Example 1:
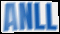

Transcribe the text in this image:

ANLL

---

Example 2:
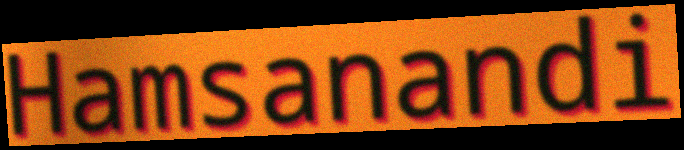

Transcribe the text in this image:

Hamsanandi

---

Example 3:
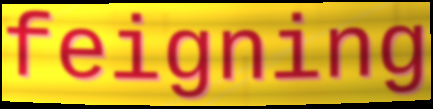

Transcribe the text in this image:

feigning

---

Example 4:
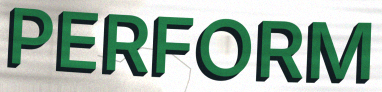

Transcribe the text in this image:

PERFORM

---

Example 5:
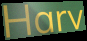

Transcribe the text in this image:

Harv